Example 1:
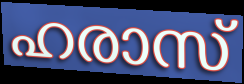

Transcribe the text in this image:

ഹരാസ്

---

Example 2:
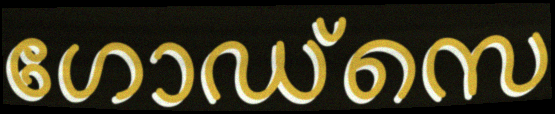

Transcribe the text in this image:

ഗോഡ്സെ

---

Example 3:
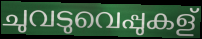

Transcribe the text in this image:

ചുവടുവെപ്പുകള്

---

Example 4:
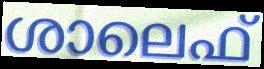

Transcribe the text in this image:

ശാലെഫ്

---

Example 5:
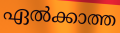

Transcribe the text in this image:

ഏൽക്കാത്ത